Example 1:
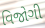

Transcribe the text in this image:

વિજોગી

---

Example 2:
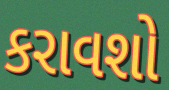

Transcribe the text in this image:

કરાવશો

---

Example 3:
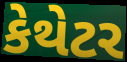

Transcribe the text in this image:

કેથેટર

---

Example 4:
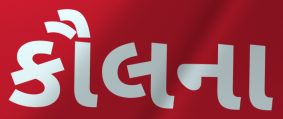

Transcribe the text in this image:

કૌલના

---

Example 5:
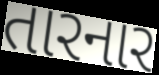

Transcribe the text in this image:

તારનાર